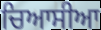
ਚਿਆਸੀਆ